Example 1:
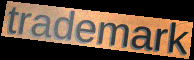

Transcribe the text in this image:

trademark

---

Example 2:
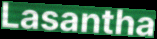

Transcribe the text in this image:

Lasantha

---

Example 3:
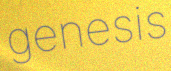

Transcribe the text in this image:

genesis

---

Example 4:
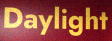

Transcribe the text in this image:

Daylight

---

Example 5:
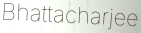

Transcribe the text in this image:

Bhattacharjee